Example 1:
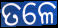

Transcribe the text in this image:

ତଳେ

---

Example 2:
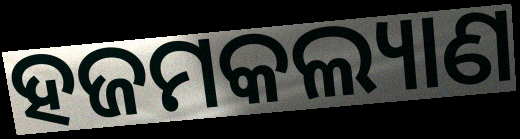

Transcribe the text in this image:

ହଜମକଲ୍ୟାଣ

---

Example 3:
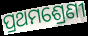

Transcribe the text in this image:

ପ୍ରଥମଶ୍ରେଣୀ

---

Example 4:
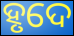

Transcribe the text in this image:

ହୃଦେ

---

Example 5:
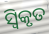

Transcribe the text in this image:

ସ୍ୱିକୃତ